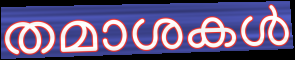
തമാശകൾ